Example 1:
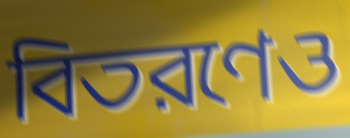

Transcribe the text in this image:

বিতরণেও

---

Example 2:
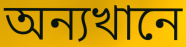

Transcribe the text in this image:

অন্যখানে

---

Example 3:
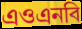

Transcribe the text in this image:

এওএনবি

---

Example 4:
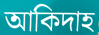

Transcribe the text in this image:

আকিদাহ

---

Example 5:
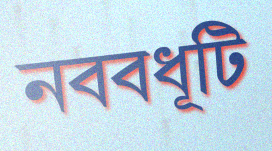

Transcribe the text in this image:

নববধূটি